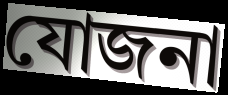
যোজনা